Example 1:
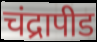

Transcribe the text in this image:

चंद्रापीड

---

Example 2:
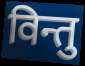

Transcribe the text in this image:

विन्तु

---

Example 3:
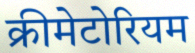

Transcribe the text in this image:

क्रीमेटोरियम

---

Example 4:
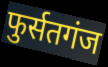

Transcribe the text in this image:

फुर्सतगंज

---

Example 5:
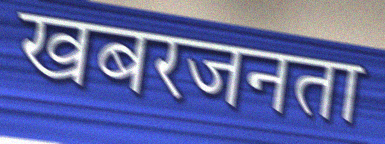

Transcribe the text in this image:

खबरजनता